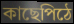
কাছেপিঠে